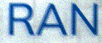
RAN